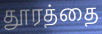
தூரத்தை